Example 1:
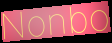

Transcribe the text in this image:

Nonbo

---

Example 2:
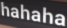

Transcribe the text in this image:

hahaha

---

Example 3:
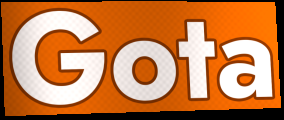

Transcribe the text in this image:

Gota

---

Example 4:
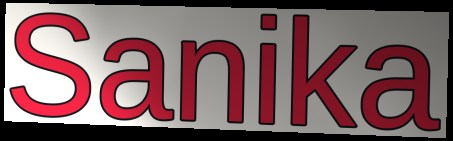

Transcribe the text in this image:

Sanika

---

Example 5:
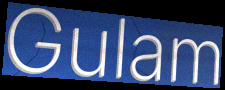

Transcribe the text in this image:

Gulam